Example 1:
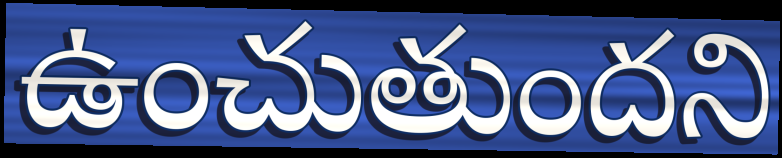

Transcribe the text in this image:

ఉంచుతుందని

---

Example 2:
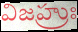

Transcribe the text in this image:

విజహ్రుః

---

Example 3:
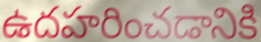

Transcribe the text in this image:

ఉదహరించడానికి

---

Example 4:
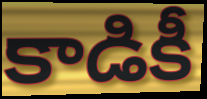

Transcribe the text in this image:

కాడికీ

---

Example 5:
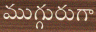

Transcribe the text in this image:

ముగ్గురుగా